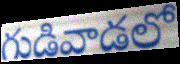
గుడివాడలో